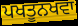
ਪਖਤੂਨਖਵਾ